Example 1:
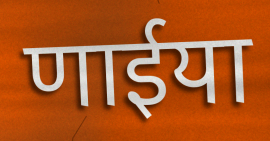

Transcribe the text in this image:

णाईया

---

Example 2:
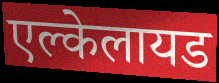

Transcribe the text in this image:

एल्केलायड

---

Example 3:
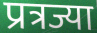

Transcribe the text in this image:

प्रत्रज्या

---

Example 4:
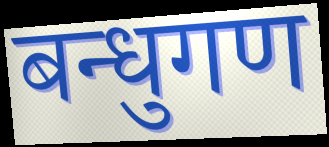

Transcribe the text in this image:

बन्धुगण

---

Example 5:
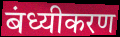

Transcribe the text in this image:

बंध्यीकरण